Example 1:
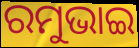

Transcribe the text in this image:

ରମୁଭାଇ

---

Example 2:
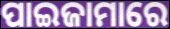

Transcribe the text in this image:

ପାଇଜାମାରେ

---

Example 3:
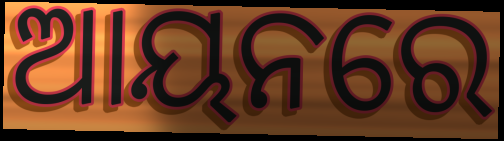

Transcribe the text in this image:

ଆୟନରେ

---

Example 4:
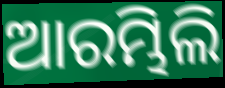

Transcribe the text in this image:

ଆରମ୍ଭିଲି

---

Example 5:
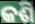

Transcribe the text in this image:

କଶି